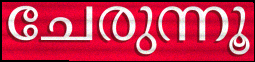
ചേരുന്നൂ